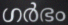
ഗർഭം